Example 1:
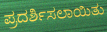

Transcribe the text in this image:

ಪ್ರದರ್ಶಿಸಲಾಯಿತು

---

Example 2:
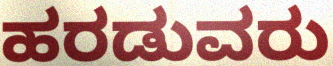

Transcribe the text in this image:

ಹರಡುವರು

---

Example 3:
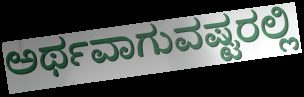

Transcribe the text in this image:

ಅರ್ಥವಾಗುವಷ್ಟರಲ್ಲಿ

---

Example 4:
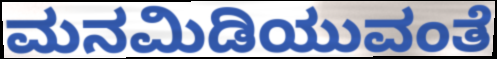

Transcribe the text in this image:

ಮನಮಿಡಿಯುವಂತೆ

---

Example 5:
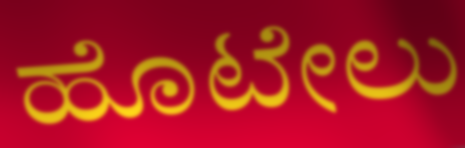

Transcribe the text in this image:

ಹೊಟೇಲು